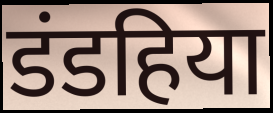
डंडहिया